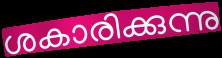
ശകാരിക്കുന്നു